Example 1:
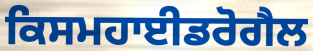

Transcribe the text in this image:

ਕਿਸਮਹਾਈਡਰੋਗੈਲ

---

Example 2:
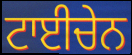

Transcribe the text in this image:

ਟਾਈਚੇਨ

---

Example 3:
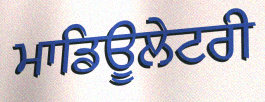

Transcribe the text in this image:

ਮਾਡਿਊਲੇਟਰੀ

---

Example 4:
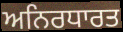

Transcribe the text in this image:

ਅਨਿਰਧਾਰਤ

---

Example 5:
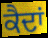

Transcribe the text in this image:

ਕੈਦਾਂ